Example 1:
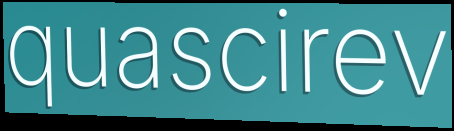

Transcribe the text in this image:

quascirev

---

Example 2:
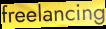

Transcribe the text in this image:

freelancing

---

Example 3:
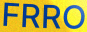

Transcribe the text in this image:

FRRO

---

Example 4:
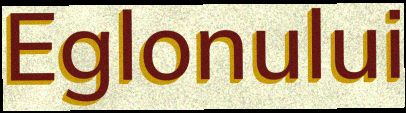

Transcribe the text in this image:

Eglonului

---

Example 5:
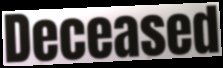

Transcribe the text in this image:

Deceased